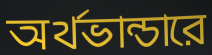
অর্থভান্ডারে